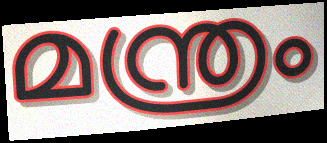
മന്ത്രം